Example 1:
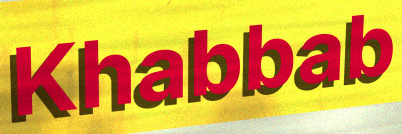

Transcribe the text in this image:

Khabbab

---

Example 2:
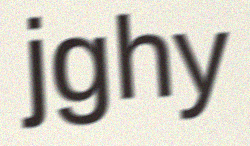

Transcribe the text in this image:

jghy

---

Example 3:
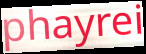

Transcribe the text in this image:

phayrei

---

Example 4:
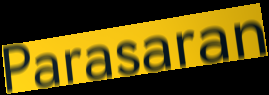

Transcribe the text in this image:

Parasaran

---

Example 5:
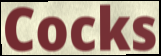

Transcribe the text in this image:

Cocks